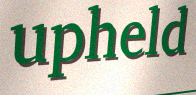
upheld